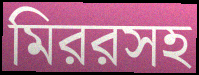
মিররসহ